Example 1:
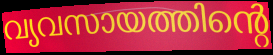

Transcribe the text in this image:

വ്യവസായത്തിന്റെ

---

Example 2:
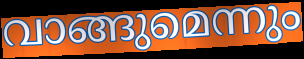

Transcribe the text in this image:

വാങ്ങുമെന്നും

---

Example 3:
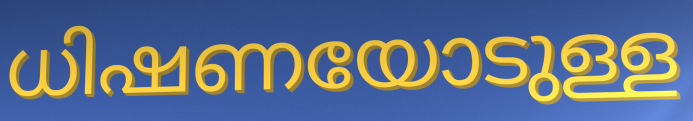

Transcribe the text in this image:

ധിഷണയോടുള്ള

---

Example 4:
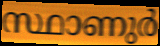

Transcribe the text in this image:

സ്ഥാണുർ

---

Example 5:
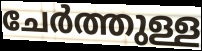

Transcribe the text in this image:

ചേർത്തുള്ള